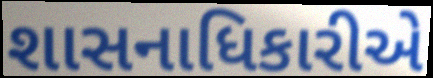
શાસનાધિકારીએ